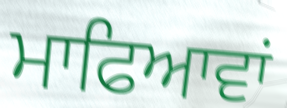
ਮਾਫਿਆਵਾਂ